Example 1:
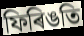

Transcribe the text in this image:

ফিৰিঙতি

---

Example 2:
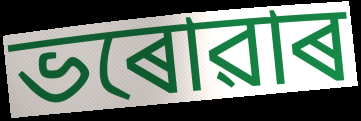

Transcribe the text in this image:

ভৰোৱাৰ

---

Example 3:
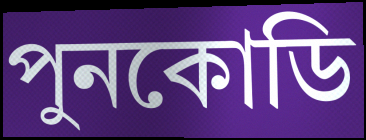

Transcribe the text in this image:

পুনকোডি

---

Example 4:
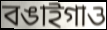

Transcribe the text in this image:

বঙাইগাও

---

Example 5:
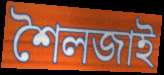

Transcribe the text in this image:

শৈলজাই